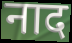
नाद